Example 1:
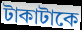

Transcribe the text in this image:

টাকাটাকে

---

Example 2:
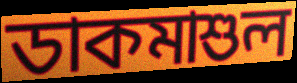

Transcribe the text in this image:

ডাকমাশুল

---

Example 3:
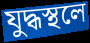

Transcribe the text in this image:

যুদ্ধস্থলে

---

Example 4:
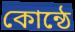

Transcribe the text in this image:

কোন্ঠে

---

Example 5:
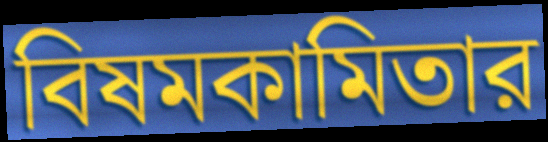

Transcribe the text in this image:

বিষমকামিতার